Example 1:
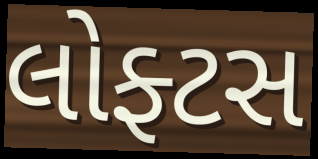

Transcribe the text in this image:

લોફ્ટસ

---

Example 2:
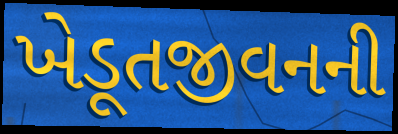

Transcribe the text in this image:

ખેડૂતજીવનની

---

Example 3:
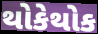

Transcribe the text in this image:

થોકેથોક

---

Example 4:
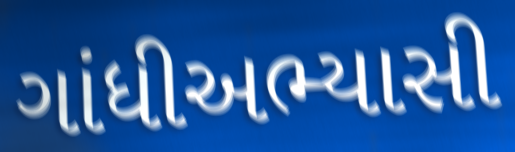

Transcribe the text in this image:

ગાંધીઅભ્યાસી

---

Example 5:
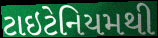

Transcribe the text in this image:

ટાઇટેનિયમથી